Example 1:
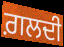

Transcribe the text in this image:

ਗ਼ਲਦੀ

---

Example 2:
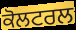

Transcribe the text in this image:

ਕੋਲਟਰਲ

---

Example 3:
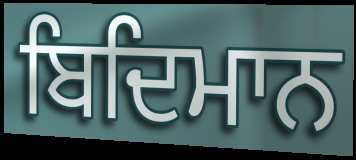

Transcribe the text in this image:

ਬਿਦਿਮਾਨ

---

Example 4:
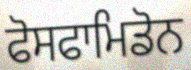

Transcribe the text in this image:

ਫੋਸਫਾਮਿਡੋਨ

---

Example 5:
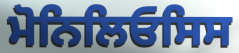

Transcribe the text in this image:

ਮੋਨਿਲਿਓਸਿਸ